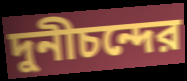
দুনীচন্দের